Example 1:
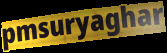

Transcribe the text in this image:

pmsuryaghar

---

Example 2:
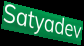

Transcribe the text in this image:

Satyadev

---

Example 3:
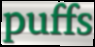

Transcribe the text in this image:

puffs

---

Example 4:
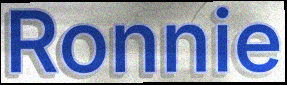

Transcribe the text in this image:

Ronnie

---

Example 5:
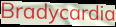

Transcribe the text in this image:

Bradycardia